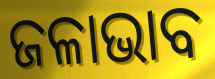
ଜଳାଭାବ